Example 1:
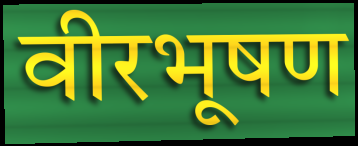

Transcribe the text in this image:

वीरभूषण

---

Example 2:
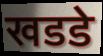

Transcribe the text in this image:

खडडे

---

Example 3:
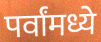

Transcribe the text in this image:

पर्वांमध्ये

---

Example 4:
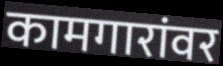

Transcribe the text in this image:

कामगारांवर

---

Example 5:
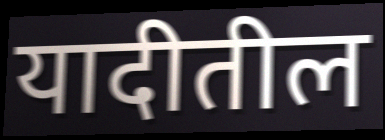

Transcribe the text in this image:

यादीतील